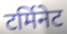
टर्मिनेट